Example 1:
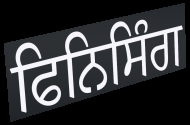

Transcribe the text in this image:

ਫਿਨਿਸਿੰਗ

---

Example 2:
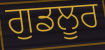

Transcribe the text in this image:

ਗੁਡਲੂਰ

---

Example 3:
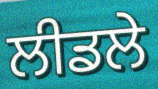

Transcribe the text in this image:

ਲੀਡਲੇ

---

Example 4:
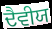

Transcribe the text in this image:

ਦੈਵੀਯ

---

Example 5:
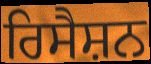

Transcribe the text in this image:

ਰਿਸੈਸ਼ਨ